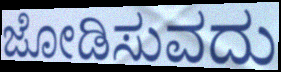
ಜೋಡಿಸುವದು